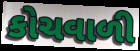
કોચવાળી